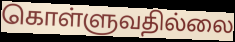
கொள்ளுவதில்லை